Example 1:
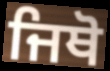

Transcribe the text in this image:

ਜਿਥੋ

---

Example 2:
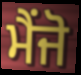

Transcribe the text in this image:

ਮੈਂਜੋ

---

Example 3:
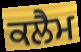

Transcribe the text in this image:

ਕਲੈਮ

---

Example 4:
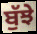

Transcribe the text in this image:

ਬੁੱਝੇ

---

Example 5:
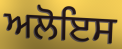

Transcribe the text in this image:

ਅਲੋਇਸ